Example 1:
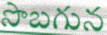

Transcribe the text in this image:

సొబగున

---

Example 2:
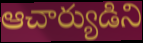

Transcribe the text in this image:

ఆచార్యుడిని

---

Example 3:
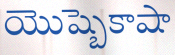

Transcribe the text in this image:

యొష్బెకాషా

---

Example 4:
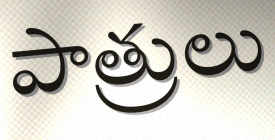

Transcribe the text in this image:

పాత్రులు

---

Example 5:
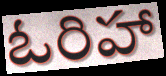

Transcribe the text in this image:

ఓరిహా